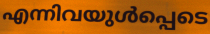
എന്നിവയുൾപ്പെടെ